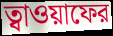
ত্বাওয়াফের